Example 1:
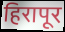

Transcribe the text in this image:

हिरापूर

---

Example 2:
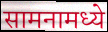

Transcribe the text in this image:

सामनामध्ये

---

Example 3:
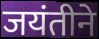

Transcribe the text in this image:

जयंतीने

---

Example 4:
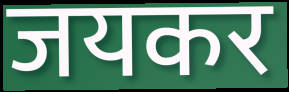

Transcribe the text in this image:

जयकर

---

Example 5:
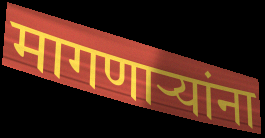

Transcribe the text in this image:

मागणार्‍यांना